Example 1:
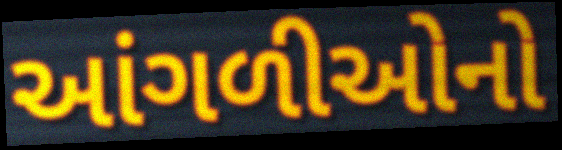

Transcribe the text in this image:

આંગળીઓનો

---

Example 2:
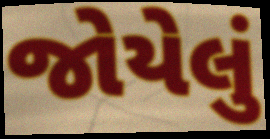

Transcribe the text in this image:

જોયેલું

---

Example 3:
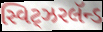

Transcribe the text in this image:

સ્વિટ્ઝરલૅન્ડ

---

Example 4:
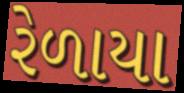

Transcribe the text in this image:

રેળાયા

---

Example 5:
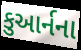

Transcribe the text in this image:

કુઆર્નના